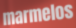
marmelos